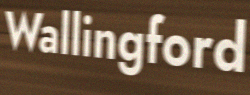
Wallingford